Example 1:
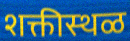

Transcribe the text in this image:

शक्तीस्थळ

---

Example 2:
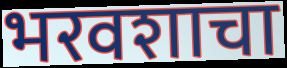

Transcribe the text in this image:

भरवशाचा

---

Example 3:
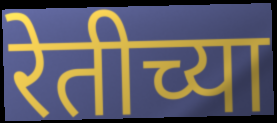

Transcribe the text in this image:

रेतीच्या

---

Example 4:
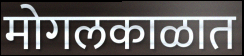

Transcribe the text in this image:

मोगलकाळात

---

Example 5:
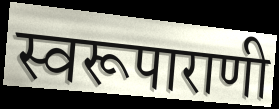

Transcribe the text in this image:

स्वरूपाराणी